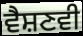
ਵੈਸ਼ਣਵੀ